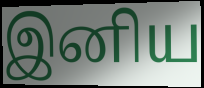
இனிய